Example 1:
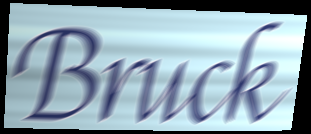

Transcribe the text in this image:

Bruck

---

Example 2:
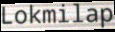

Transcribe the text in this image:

Lokmilap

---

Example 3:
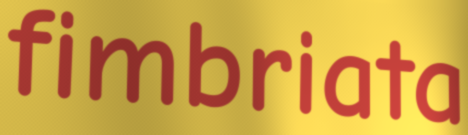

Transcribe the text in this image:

fimbriata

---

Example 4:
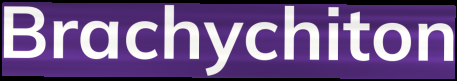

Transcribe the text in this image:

Brachychiton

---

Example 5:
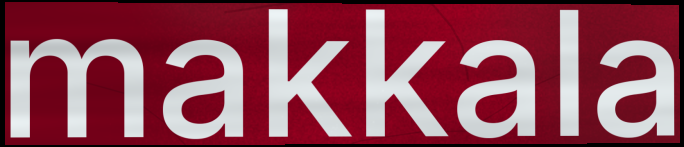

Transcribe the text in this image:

makkala